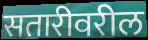
सतारीवरील